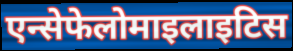
एन्सेफेलोमाइलाइटिस